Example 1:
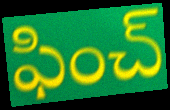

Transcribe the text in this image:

ఫించ్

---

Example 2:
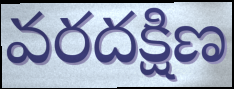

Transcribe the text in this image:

వరదక్షిణ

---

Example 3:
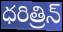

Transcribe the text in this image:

ధరిత్రిన్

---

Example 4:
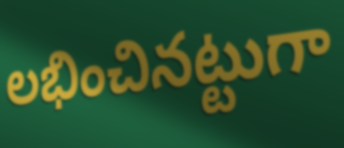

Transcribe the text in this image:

లభించినట్టుగా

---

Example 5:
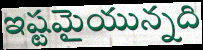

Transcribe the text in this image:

ఇష్టమైయున్నది